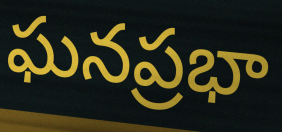
ఘనప్రభా